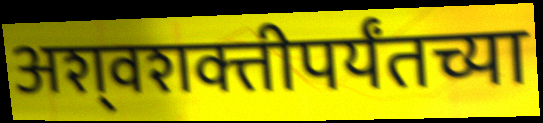
अश्वशक्तीपर्यंतच्या